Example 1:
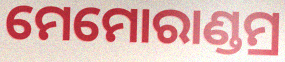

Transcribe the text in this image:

ମେମୋରାଣ୍ଡମ୍ର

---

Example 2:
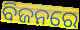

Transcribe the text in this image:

ବିଜନରେ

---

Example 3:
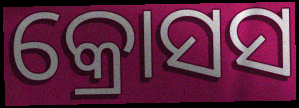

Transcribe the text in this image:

କ୍ରୋସସ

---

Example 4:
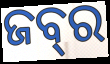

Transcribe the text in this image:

ଜବ୍‍ର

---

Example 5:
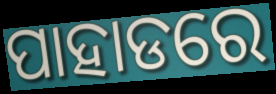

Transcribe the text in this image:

ପାହାଡରେ